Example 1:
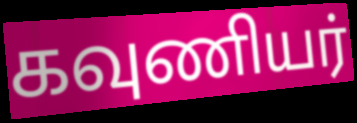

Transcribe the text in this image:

கவுணியர்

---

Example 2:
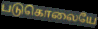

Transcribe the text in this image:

படுகொலையே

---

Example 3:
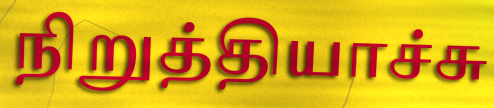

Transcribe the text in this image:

நிறுத்தியாச்சு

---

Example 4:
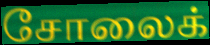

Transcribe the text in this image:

சோலைக்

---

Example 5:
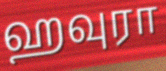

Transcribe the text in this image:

ஹவுரா